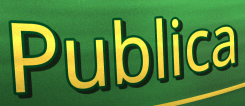
Publica